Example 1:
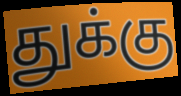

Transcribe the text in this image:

துக்கு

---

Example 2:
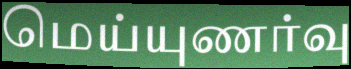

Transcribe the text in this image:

மெய்யுணர்வு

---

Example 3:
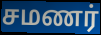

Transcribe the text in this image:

சமணர்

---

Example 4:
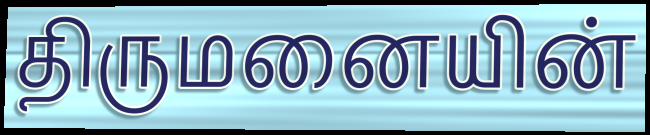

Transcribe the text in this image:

திருமனையின்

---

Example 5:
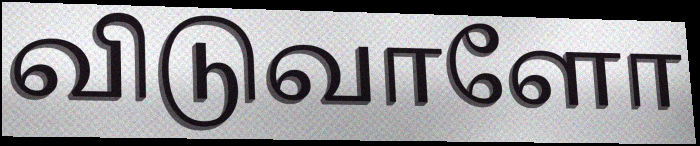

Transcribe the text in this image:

விடுவாளோ